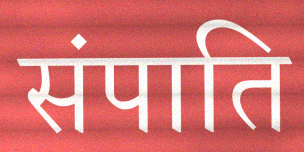
संपाति